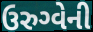
ઉરુગ્વેની